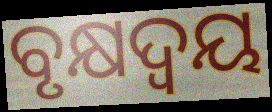
ବୃକ୍ଷଦ୍ୱୟ